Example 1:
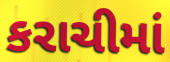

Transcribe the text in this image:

કરાચીમાં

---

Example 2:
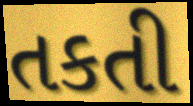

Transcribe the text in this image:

તકતી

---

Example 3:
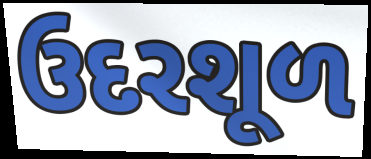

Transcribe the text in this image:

ઉદરશૂળ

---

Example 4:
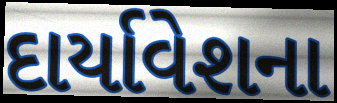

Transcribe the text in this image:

દાર્યાવેશના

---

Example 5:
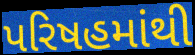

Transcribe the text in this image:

પરિષહમાંથી